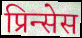
प्रिन्सेस